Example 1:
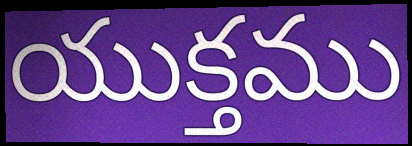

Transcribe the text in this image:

యుక్తము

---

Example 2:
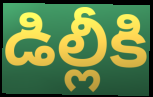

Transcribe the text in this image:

డిల్లీకి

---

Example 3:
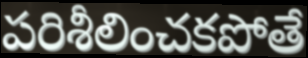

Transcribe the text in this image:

పరిశీలించకపోతే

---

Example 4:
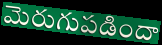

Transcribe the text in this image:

మెరుగుపడిందా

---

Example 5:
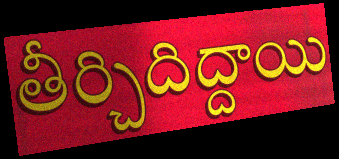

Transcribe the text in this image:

తీర్చిదిద్దాయి